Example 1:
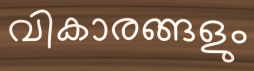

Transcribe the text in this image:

വികാരങ്ങളും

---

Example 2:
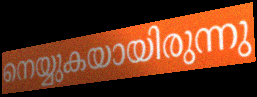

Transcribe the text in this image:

നെയ്യുകയായിരുന്നു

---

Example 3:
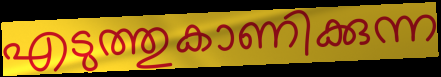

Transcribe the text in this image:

എടുത്തുകാണിക്കുന്ന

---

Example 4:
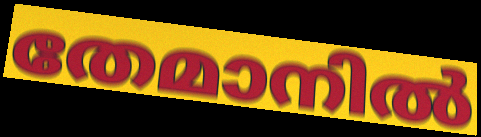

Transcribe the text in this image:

തേമാനിൽ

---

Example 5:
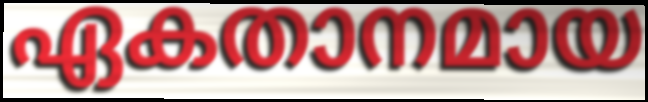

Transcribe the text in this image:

ഏകതാനമായ